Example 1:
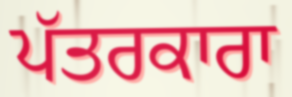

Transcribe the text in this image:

ਪੱਤਰਕਾਰਾ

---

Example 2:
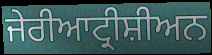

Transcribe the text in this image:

ਜੇਰੀਆਟ੍ਰੀਸ਼ੀਅਨ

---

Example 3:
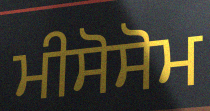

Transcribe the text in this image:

ਮੀਸੋਸੋਮ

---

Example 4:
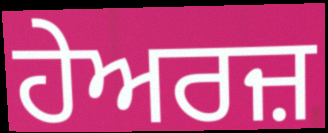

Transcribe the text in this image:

ਹੇਅਰਜ਼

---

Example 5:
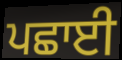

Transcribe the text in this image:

ਪਛਾਈ